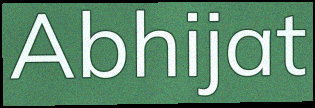
Abhijat